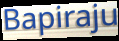
Bapiraju